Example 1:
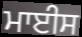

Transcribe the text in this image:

ਮਾਈਸ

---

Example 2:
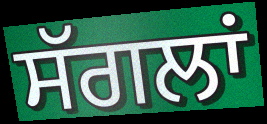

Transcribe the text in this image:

ਸੱਗਲਾਂ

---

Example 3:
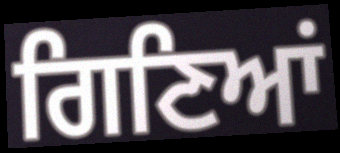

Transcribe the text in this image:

ਗਿਣਿਆਂ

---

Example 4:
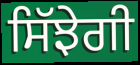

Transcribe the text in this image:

ਸਿੱਝੇਗੀ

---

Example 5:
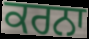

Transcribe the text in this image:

ਕਰਨਾ